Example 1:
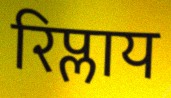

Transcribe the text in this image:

रिप्लाय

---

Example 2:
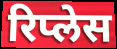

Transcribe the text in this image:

रिप्लेस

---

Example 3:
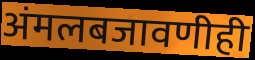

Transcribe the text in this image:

अंमलबजावणीही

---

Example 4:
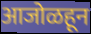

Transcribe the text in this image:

आजोळहून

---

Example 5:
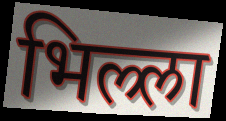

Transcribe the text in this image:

भिल्ला